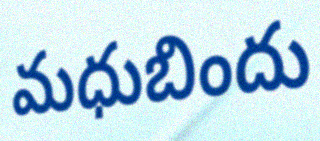
మధుబిందు